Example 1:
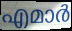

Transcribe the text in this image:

എമാർ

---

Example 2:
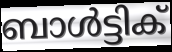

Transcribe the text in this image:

ബാൾട്ടിക്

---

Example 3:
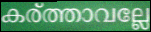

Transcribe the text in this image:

കര്ത്താവല്ലേ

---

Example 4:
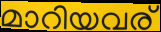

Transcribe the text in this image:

മാറിയവര്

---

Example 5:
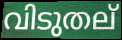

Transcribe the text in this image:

വിടുതല്